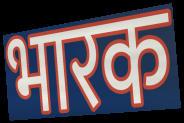
भारक